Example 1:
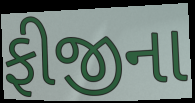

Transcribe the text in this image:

ફીજીના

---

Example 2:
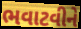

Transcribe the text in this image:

ભવાટવીને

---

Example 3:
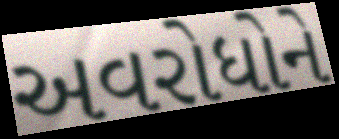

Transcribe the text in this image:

અવરોધોને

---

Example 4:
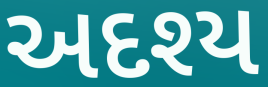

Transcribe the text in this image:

અદશ્ય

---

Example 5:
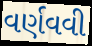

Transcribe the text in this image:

વર્ણવવી